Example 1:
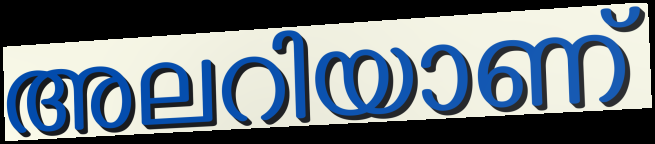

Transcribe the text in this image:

അലറിയാണ്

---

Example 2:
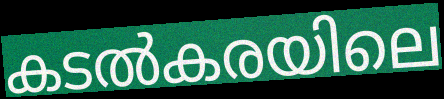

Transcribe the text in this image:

കടൽകരയിലെ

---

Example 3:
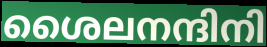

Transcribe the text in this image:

ശൈലനന്ദിനി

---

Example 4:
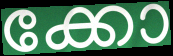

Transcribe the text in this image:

ക്കോ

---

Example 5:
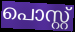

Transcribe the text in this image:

പൊസ്റ്റ്